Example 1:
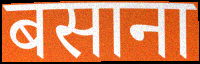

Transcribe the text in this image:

बसाना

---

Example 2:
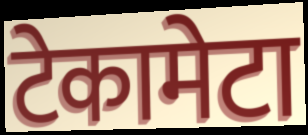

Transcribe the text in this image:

टेकामेटा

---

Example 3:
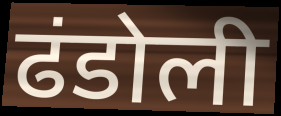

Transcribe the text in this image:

ढंडोली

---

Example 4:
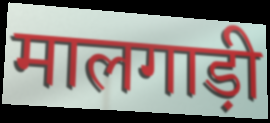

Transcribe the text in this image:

मालगाड़ी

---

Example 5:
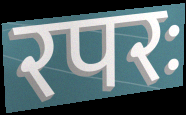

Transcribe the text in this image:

रपरः